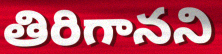
తిరిగానని